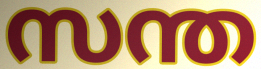
സന്ത